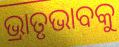
ଭ୍ରାତୃଭାବକୁ